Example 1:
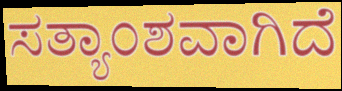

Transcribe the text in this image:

ಸತ್ಯಾಂಶವಾಗಿದೆ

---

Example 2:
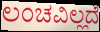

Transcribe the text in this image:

ಲಂಚವಿಲ್ಲದೆ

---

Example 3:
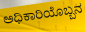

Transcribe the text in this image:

ಅಧಿಕಾರಿಯೊಬ್ಬನ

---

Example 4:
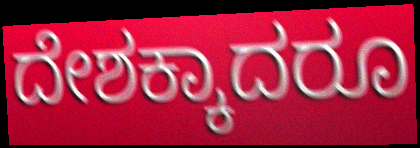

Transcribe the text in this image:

ದೇಶಕ್ಕಾದರೂ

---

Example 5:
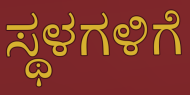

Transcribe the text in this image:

ಸ್ಥಳಗಳಿಗೆ